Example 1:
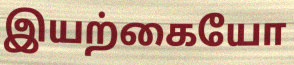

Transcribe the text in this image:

இயற்கையோ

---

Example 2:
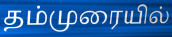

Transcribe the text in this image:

தம்முரையில்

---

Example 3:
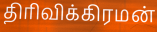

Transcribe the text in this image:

திரிவிக்கிரமன்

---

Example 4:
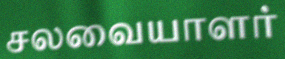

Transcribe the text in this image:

சலவையாளர்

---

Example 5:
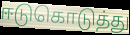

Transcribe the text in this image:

ஈடுகொடுத்து